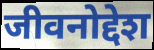
जीवनोद्देश